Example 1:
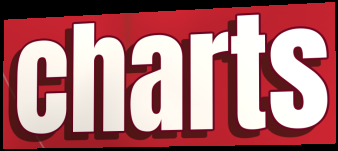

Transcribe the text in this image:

charts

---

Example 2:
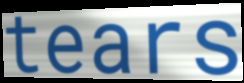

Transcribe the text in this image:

tears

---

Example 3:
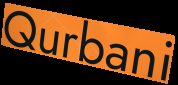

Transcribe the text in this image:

Qurbani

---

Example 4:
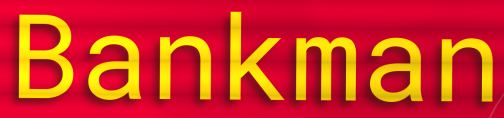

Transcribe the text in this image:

Bankman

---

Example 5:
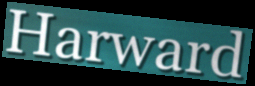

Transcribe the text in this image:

Harward